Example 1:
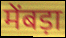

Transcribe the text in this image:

मेंबड़ा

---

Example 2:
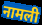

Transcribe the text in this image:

नामली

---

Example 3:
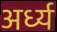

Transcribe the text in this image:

अर्ध्य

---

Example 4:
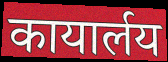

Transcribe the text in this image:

कायार्लय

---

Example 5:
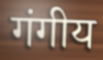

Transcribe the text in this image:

गंगीय